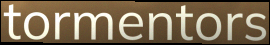
tormentors